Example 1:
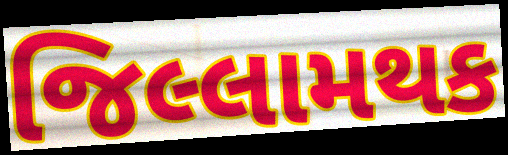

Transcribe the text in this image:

જિલ્લામથક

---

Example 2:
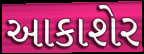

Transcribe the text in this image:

આકાશેર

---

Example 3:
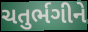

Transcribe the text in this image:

ચતુર્ભગીને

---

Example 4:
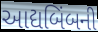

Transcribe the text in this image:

આદ્યબિંબની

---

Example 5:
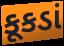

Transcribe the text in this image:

કૂકડાં